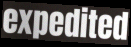
expedited